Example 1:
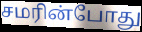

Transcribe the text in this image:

சமரின்போது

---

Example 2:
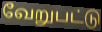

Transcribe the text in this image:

வேறுபட்டு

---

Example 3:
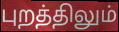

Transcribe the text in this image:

புறத்திலும்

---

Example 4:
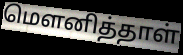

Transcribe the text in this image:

மௌனித்தாள்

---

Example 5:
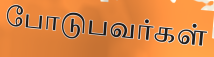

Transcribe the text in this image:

போடுபவர்கள்